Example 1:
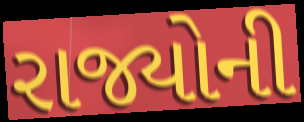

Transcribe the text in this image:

રાજ્યોની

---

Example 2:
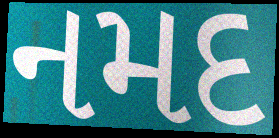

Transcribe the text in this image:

નમદ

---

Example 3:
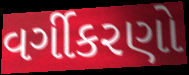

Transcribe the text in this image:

વર્ગીકરણો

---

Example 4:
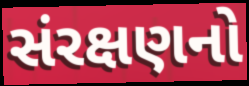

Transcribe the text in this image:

સંરક્ષણનો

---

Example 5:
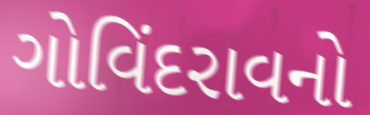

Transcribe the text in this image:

ગોવિંદરાવનો